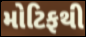
મોટિફથી